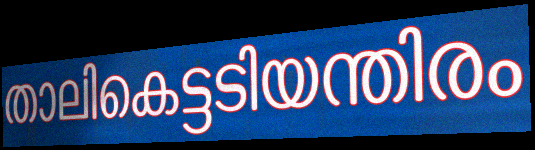
താലികെട്ടടിയന്തിരം